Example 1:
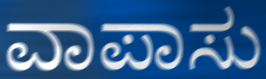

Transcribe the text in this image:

ವಾಪಾಸು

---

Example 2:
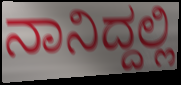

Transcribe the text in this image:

ನಾನಿದ್ದಲ್ಲಿ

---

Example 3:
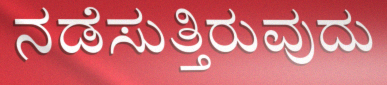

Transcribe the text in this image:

ನಡೆಸುತ್ತಿರುವುದು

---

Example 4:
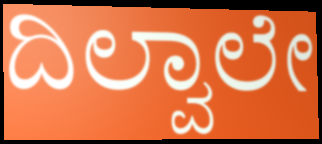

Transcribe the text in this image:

ದಿಲ್ವಾಲೇ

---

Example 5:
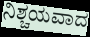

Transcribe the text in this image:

ನಿಶ್ಚಯವಾದ